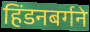
हिंडनबर्गने